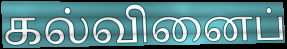
கல்வினைப்